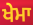
ਖੇਮਾ